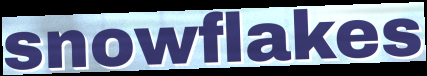
snowflakes